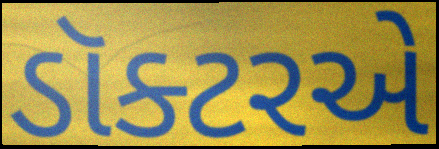
ડૉક્ટરએ